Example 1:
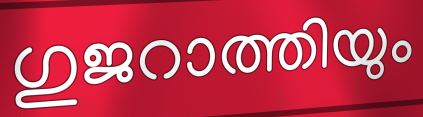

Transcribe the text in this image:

ഗുജറാത്തിയും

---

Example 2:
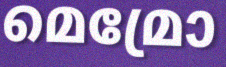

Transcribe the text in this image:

മെമ്രോ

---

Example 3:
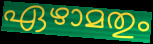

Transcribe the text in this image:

ഏഴാമതും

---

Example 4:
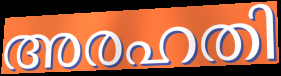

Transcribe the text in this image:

അരഹതി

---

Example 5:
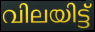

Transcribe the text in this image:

വിലയിട്ട്